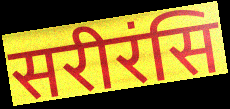
सरीरंसि